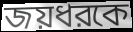
জয়ধরকে